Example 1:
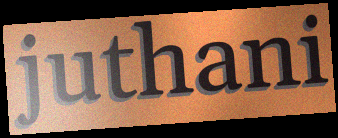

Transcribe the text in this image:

juthani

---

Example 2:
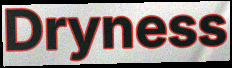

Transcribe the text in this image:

Dryness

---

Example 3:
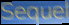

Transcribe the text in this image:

Sequel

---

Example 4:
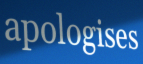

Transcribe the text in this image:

apologises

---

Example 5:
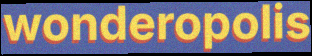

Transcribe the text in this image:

wonderopolis